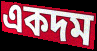
একদম